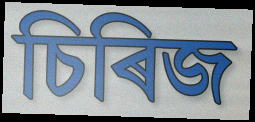
চিৰিজ